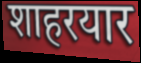
शाहरयार